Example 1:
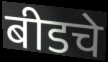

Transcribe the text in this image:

बीडचे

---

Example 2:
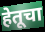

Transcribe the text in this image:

हेतूचा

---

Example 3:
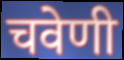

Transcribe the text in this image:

चवेणी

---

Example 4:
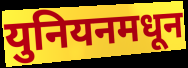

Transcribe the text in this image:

युनियनमधून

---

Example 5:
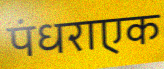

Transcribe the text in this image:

पंधराएक